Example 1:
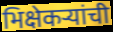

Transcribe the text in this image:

भिक्षेकऱ्यांची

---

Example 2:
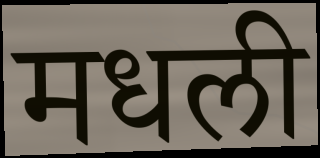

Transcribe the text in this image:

मधली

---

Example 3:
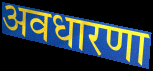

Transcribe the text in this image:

अवधारणा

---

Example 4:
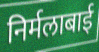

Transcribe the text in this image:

निर्मलाबाई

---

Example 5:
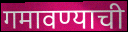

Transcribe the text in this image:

गमावण्याची